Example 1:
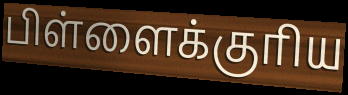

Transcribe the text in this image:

பிள்ளைக்குரிய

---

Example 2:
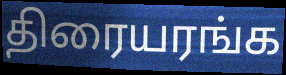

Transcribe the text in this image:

திரையரங்க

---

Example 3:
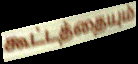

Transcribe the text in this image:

கூட்டத்தையும்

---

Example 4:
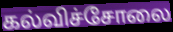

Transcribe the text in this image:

கல்விச்சோலை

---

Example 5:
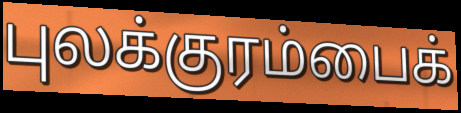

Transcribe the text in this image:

புலக்குரம்பைக்